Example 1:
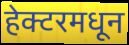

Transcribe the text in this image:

हेक्टरमधून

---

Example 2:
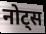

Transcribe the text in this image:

नोट्स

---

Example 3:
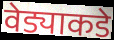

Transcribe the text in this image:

वेड्याकडे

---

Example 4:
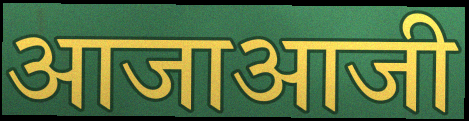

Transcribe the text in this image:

आजाआजी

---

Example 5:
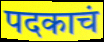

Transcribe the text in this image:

पदकाचं